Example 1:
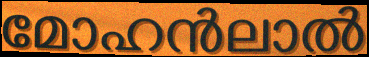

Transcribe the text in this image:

മോഹൻലാൽ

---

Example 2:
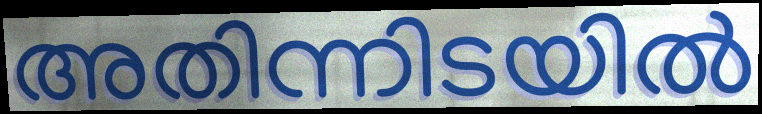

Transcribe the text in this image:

അതിന്നിടയിൽ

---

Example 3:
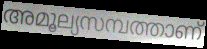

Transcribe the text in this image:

അമൂല്യസമ്പത്താണ്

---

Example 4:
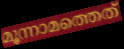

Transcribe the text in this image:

മൂന്നാമത്തെത്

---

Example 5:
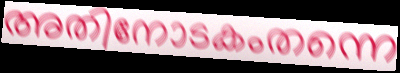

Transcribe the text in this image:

അതിനോടകംതന്നെ